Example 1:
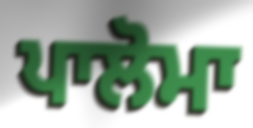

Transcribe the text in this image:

ਪਾਲੋਮਾ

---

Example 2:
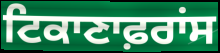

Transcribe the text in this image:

ਟਿਕਾਣਾਫ਼ਰਾਂਸ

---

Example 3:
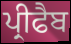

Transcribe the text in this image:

ਪ੍ਰੀਫੈਬ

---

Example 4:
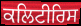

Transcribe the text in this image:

ਕਲਿਟੀਰਿਸ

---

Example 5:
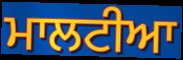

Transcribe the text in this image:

ਮਾਲਟੀਆ